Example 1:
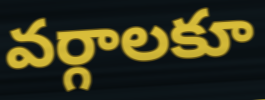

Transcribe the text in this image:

వర్గాలకూ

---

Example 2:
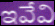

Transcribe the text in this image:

ఇవేవి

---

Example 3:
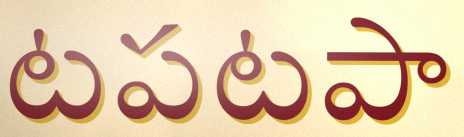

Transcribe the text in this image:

టపటపా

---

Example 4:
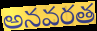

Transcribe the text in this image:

అనవరత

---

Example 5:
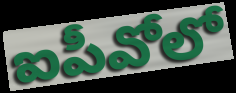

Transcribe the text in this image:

ఐపీవోలో